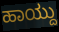
ಹಾಯ್ದು